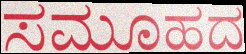
ಸಮೂಹದ